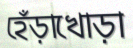
হেঁড়াখোড়া